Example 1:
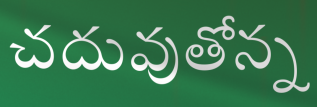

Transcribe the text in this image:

చదువుతోన్న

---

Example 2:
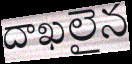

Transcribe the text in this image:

దాఖలైన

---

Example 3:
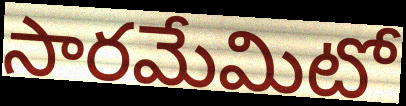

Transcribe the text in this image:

సారమేమిటో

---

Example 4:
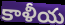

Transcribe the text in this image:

కాళీయ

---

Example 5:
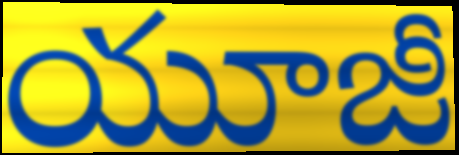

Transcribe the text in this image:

యూజీ